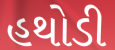
હથોડી